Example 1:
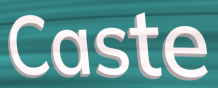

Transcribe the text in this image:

Caste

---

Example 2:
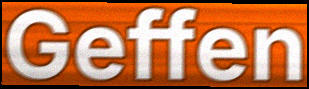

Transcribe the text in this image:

Geffen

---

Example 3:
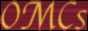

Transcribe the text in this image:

OMCs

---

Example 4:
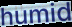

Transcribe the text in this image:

humid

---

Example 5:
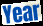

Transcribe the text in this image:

Year